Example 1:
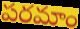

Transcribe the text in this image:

పరమాం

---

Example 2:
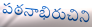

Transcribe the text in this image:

పఠనాభిరుచిని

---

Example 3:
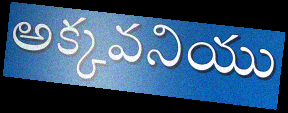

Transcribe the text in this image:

అక్కవనియు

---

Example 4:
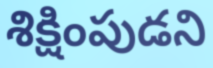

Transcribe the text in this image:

శిక్షింపుడని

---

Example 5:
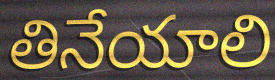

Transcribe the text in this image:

తినేయాలి